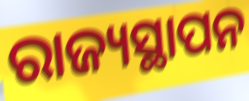
ରାଜ୍ୟସ୍ଥାପନ